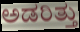
ಅಡರಿತ್ತು